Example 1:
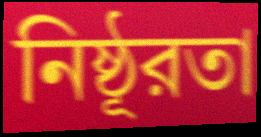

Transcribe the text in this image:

নিষ্ঠূরতা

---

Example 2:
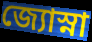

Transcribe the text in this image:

জ্যোস্না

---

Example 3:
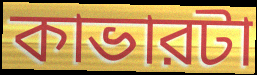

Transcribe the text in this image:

কাভারটা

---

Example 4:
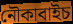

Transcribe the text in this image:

নৌকাবাইচ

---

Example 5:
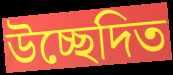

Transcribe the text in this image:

উচ্ছেদিত